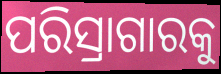
ପରିସ୍ରାଗାରକୁ